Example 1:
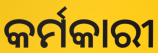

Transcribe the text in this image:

କର୍ମକାରୀ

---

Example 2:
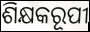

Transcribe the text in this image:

ଶିକ୍ଷକରୂପୀ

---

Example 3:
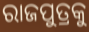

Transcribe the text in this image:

ରାଜପୁତ୍ରକୁ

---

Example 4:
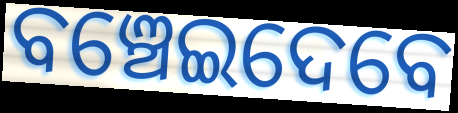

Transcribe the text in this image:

ବଞ୍ଚେଇଦେବେ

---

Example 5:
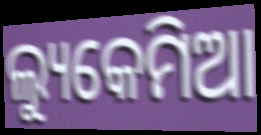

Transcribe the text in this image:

ଲ୍ୟୁକେମିଆ